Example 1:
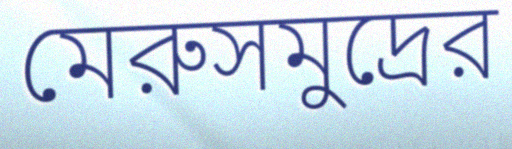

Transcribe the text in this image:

মেরুসমুদ্রের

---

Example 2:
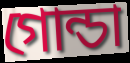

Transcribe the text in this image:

গোন্ডা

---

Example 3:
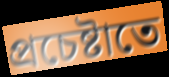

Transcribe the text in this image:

প্রচেষ্টাতে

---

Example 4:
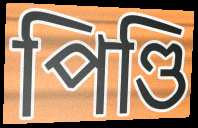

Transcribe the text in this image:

পিণ্ডি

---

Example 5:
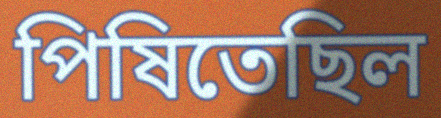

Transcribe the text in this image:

পিষিতেছিল